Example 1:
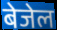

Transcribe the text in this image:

बेजेल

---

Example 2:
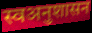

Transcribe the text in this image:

स्वअनुशासन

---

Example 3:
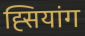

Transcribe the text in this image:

ह्सियांग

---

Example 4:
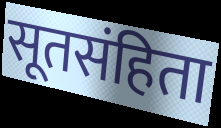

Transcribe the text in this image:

सूतसंहिता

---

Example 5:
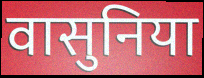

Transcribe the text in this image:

वासुनिया